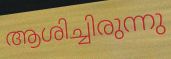
ആശിച്ചിരുന്നു